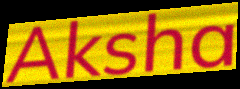
Aksha